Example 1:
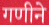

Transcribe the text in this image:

गणीने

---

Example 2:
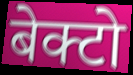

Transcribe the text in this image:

बेक्टो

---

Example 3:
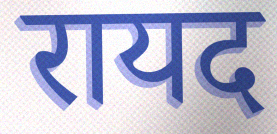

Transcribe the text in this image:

रायद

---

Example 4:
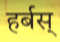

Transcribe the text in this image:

हर्बस्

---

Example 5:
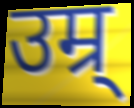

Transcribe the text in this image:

उम्र्